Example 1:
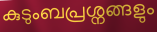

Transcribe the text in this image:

കുടുംബപ്രശ്നങ്ങളും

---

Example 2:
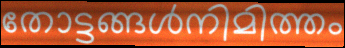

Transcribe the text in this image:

തോട്ടങ്ങൾനിമിത്തം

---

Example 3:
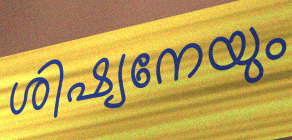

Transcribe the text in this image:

ശിഷ്യനേയും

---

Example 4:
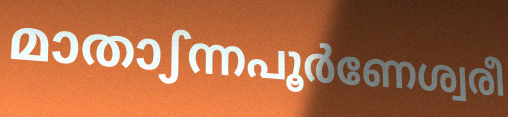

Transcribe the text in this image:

മാതാഽന്നപൂർണേശ്വരീ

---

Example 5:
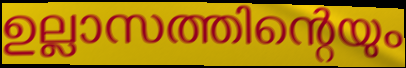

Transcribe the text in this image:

ഉല്ലാസത്തിന്റെയും